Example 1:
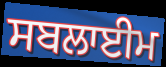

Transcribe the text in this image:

ਸਬਲਾਈਮ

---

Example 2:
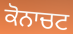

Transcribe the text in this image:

ਕੋਨਾਚਟ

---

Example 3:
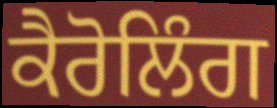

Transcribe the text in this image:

ਕੈਰੋਲਿੰਗ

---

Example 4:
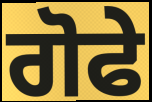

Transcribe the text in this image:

ਗੋਫੇ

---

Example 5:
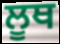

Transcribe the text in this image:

ਲੂਥ